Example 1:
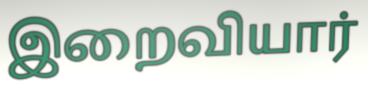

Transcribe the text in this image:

இறைவியார்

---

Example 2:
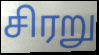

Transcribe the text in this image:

சிரறு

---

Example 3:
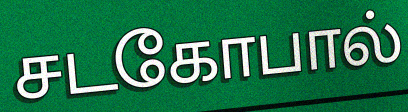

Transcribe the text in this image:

சடகோபால்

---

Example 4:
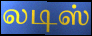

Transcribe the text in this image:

லடிஸ்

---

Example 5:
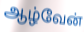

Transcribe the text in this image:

ஆழ்வேன்